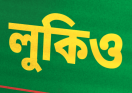
লুকিও